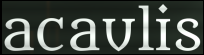
acaulis